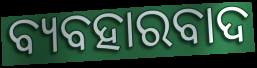
ବ୍ୟବହାରବାଦ